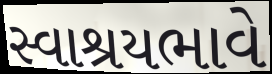
સ્વાશ્રયભાવે